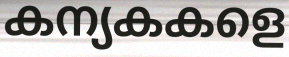
കന്യകകളെ